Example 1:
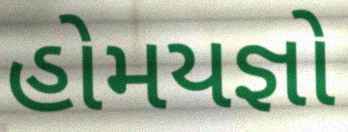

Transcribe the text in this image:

હોમયજ્ઞો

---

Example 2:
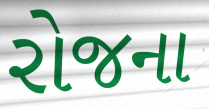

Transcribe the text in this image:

રોજના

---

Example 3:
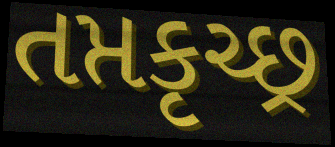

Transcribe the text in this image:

તપ્તકૃચ્છ્ર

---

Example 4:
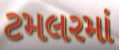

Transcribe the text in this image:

ટમલરમાં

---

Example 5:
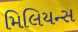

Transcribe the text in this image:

મિલિયન્સ